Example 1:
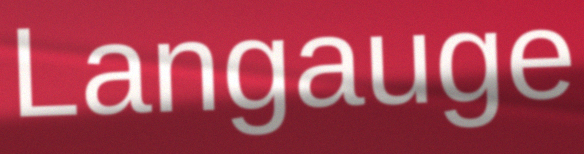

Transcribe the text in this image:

Langauge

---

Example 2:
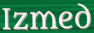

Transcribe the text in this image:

Izmed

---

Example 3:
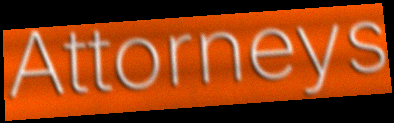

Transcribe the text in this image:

Attorneys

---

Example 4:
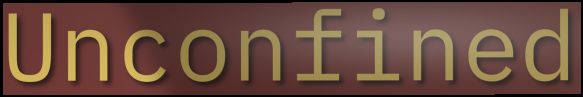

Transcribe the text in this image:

Unconfined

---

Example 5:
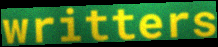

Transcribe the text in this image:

writters